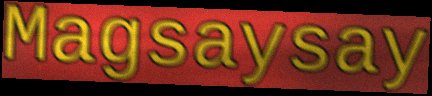
Magsaysay